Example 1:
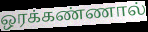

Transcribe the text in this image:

ஒரக்கண்ணால்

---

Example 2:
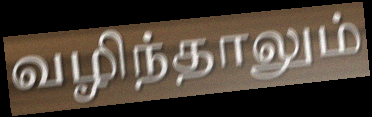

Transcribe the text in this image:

வழிந்தாலும்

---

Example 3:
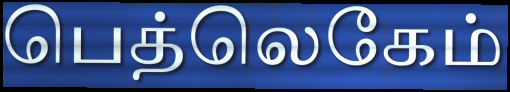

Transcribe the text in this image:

பெத்லெகேம்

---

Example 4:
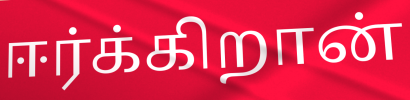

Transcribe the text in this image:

ஈர்க்கிறான்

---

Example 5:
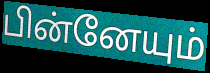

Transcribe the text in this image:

பின்னேயும்